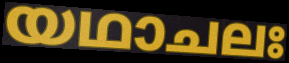
യഥാചലഃ